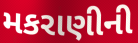
મકરાણીની